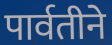
पार्वतीने